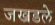
जखडले